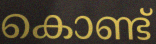
കൊണ്ട്